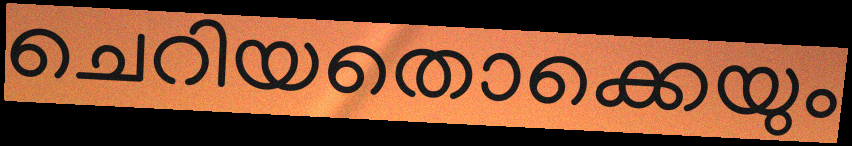
ചെറിയതൊക്കെയും